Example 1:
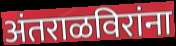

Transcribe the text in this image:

अंतराळविरांना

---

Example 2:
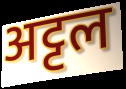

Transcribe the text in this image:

अट्टल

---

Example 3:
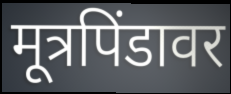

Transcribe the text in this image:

मूत्रपिंडावर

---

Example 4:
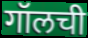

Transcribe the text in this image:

गॉलची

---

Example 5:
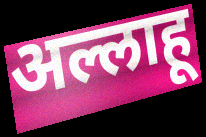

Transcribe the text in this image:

अल्लाहू